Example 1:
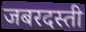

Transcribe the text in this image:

जबरदस्ती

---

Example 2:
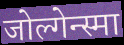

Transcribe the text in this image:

जोल्गेन्स्मा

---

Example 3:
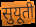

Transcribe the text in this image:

सुयूती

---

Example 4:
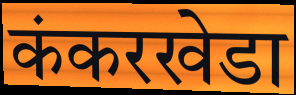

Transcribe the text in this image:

कंकरखेडा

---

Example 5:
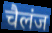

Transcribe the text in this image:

चैलंज